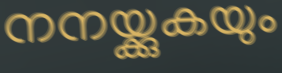
നനയ്ക്കുകയും